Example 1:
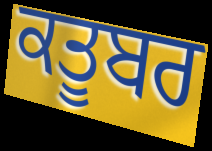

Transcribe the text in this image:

ਕਤੂਬਰ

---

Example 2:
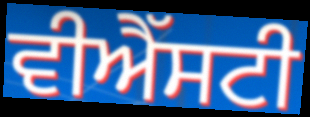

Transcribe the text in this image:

ਵੀਐੱਸਟੀ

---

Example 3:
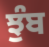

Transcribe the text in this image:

ਝੁੰਬ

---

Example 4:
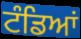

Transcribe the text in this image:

ਟੰਡਿਆਂ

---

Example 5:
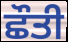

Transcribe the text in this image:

ਛੌਤੀ